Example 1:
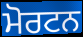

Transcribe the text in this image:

ਮੋਰਟਨ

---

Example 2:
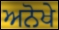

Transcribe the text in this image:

ਅਨੋਖੇ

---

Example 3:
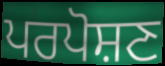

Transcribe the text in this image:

ਪਰਪੋਸ਼ਣ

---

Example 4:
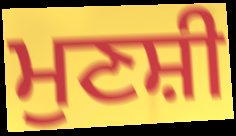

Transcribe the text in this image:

ਮੁਣਸ਼ੀ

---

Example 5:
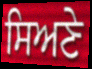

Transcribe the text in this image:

ਸਿਅਣੇ